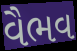
વૈભવ